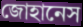
জোহানেস